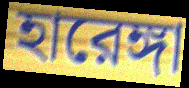
হারেঙ্গা